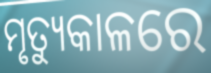
ମୃତ୍ୟୁକାଳରେ